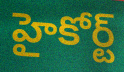
హైకోర్ట్